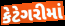
કેટેગરીમાં